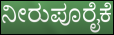
ನೀರುಪೂರೈಕೆ